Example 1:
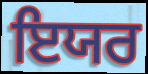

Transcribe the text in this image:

ਇਯਰ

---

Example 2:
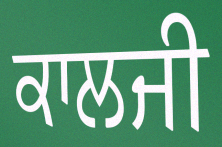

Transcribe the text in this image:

ਕਾਲਜੀ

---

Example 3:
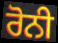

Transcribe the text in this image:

ਰੋਨੀ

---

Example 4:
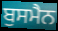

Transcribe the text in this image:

ਬੁਸਮੈਨ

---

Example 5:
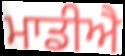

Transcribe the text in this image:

ਮਾਡੀਐ